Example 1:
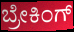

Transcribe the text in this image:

ಬ್ರೇಕಿಂಗ್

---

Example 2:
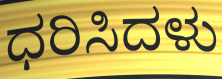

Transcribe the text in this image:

ಧರಿಸಿದಳು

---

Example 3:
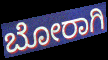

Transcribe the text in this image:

ಬೋರಾಗಿ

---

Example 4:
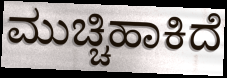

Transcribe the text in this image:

ಮುಚ್ಚಿಹಾಕಿದೆ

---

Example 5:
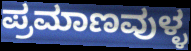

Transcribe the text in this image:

ಪ್ರಮಾಣವುಳ್ಳ